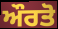
ਔਰਤੋ